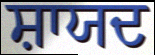
ਸ਼ਾਯਦ